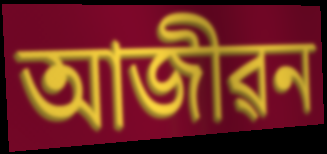
আজীৱন